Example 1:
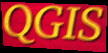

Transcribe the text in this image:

QGIS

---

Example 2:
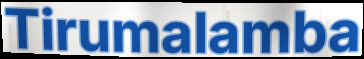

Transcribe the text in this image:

Tirumalamba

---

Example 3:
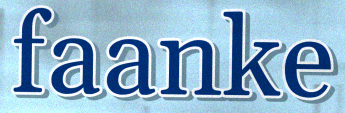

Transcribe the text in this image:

faanke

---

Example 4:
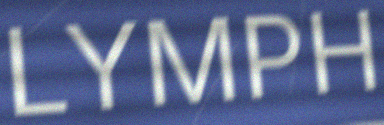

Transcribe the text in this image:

LYMPH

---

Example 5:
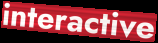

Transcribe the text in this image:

interactive